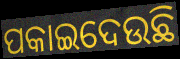
ପକାଇଦେଉଛି